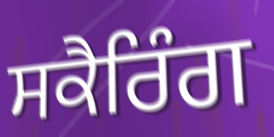
ਸਕੈਰਿੰਗ